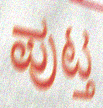
ಪುಟ್ತ